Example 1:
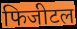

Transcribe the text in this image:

फिजीटल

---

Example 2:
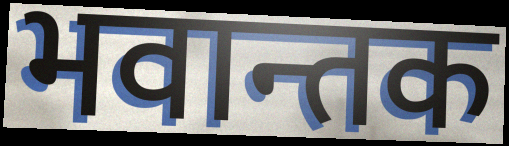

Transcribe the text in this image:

भवान्तक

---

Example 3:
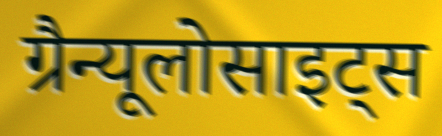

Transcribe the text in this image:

ग्रैन्यूलोसाइट्स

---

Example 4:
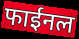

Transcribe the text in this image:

फाईनल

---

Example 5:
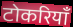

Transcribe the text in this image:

टोकरियाँ